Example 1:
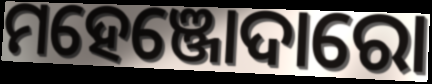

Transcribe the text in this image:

ମହେଞ୍ଜୋଦାରୋ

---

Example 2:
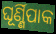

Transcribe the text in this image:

ଘୂର୍ଣ୍ଣିପାକ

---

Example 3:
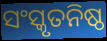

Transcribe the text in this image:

ସଂସ୍କୃତନିଷ୍ଠ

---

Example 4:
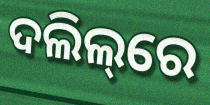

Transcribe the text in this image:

ଦଲିଲ୍‌ରେ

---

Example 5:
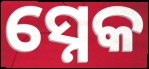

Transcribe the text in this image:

ସ୍ନେକ